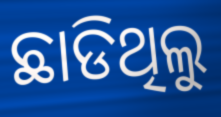
ଛାଡିଥିଲୁ